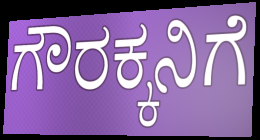
ಗೌರಕ್ಕನಿಗೆ